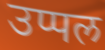
उप्पल